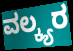
ವಲ್ಕ್ಯರ